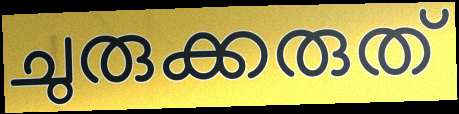
ചുരുക്കരുത്